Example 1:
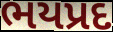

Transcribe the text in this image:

ભયપ્રદ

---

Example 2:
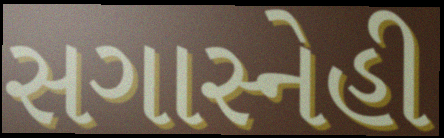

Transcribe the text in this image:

સગાસ્નેહી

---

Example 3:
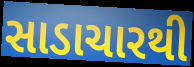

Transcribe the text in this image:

સાડાચારથી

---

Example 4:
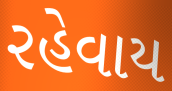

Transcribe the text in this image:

રહેવાય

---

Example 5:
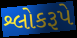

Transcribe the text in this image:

શ્લોકરૂપે